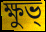
ক্ষুভ্